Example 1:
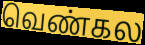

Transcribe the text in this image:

வெண்கல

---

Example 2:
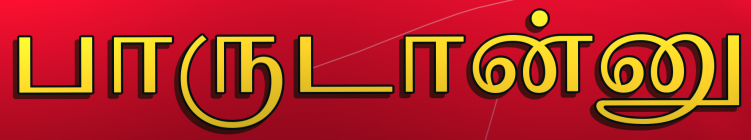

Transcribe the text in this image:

பாருடான்னு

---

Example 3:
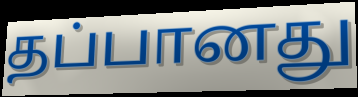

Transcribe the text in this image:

தப்பானது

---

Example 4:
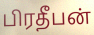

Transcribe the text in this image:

பிரதீபன்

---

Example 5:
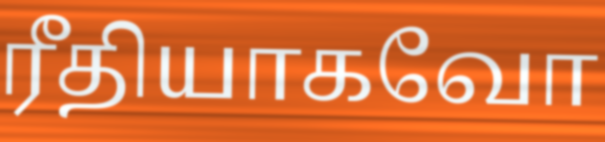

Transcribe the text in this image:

ரீதியாகவோ